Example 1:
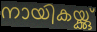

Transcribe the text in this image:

നായികയ്ക്കു്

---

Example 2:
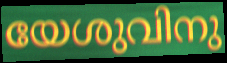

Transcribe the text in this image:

യേശുവിനു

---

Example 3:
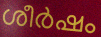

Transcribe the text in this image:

ശീർഷം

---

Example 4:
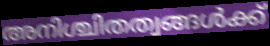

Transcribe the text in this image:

അനിശ്ചിതത്വങ്ങൾക്ക്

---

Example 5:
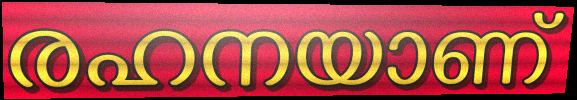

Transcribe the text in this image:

രഹനയാണ്